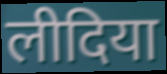
लीदिया